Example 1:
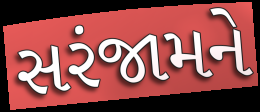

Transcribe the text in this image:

સરંજામને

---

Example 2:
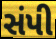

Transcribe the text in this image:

સંપી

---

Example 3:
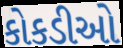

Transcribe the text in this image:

કોકડીઓ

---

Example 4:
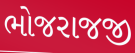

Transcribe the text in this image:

ભોજરાજજી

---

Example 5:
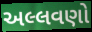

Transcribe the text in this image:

અલ્લવણો